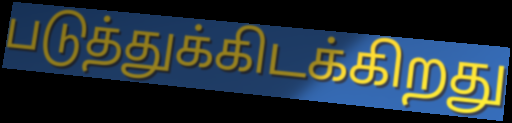
படுத்துக்கிடக்கிறது